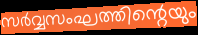
സർവ്വസംഘത്തിന്റെയും